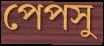
পেপসু